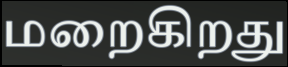
மறைகிறது